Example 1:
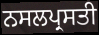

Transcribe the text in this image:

ਨਸਲਪ੍ਰਸਤੀ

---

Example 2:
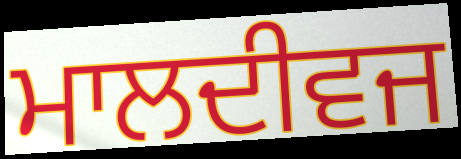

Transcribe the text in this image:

ਮਾਲਦੀਵਜ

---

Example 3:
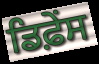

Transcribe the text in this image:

ਡਿਫ਼ੇੰਸ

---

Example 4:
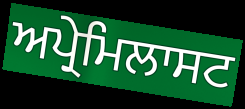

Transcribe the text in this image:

ਅਪ੍ਰੇਮਿਲਾਸਟ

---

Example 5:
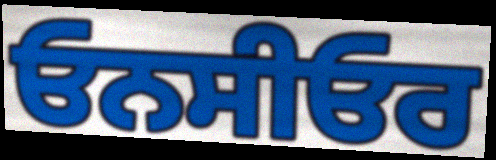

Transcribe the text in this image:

ਓਨਸੀਓਰ